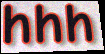
hhh